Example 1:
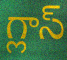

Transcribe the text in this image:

గ్లాస్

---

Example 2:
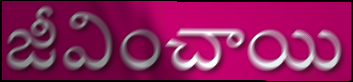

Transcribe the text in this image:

జీవించాయి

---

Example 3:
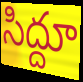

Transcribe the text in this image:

సిద్దూ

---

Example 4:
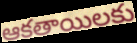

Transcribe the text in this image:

ఆకతాయిలకు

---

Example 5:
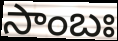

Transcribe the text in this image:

సాంబః